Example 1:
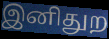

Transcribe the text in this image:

இனிதுற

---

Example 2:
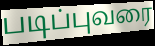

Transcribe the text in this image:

படிப்புவரை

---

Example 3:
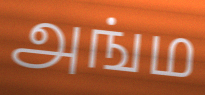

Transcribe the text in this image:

அங்ம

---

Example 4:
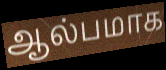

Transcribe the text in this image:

ஆல்பமாக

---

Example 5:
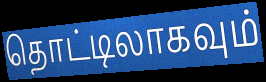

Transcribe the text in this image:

தொட்டிலாகவும்